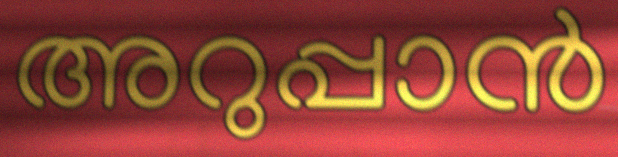
അറുപ്പാൻ